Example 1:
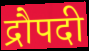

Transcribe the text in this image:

द्रौपदी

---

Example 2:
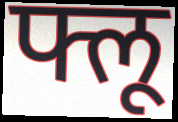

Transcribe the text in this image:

फ्लू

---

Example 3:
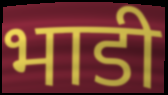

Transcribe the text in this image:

भाडी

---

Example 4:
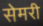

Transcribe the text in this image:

सेमरी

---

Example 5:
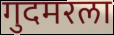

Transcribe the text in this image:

गुदमरला